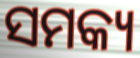
ସମକ୍ୟ